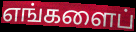
எங்களைப்